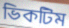
ভিকটিম